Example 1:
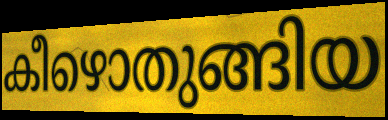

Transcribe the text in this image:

കീഴൊതുങ്ങിയ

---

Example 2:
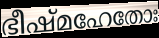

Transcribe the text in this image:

ഭീഷ്മഹേതോഃ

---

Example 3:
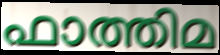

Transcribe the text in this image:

ഫാത്തിമ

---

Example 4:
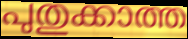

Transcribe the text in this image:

പുതുക്കാത്ത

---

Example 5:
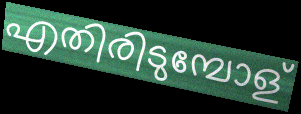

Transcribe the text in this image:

എതിരിടുമ്പോള്